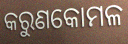
କରୁଣକୋମଳ